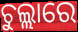
ଚୁଲ୍ଲାରେ